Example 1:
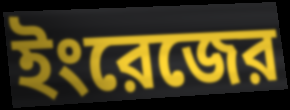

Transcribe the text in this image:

ইংরেজের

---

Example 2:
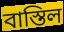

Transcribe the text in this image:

বাস্তিল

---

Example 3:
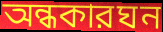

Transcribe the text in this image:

অন্ধকারঘন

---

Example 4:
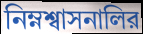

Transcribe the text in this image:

নিম্নশ্বাসনালির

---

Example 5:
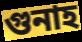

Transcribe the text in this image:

গুনাহ